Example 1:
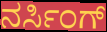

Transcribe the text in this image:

ನರ್ಸಿಂಗ್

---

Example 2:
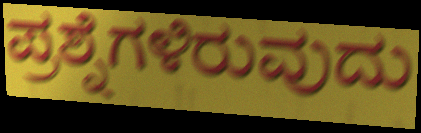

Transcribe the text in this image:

ಪ್ರಶ್ನೆಗಳಿರುವುದು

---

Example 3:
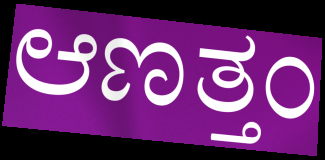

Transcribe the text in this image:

ಆಣತ್ತಂ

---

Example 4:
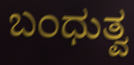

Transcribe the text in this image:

ಬಂಧುತ್ವ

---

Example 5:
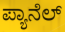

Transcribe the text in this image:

ಪ್ಯಾನೆಲ್